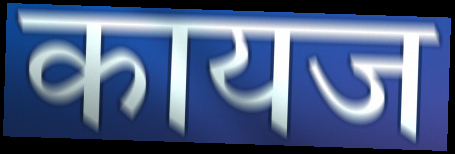
कायज